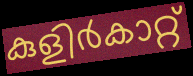
കുളിർകാറ്റ്